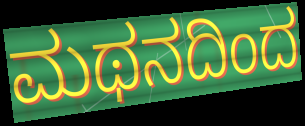
ಮಥನದಿಂದ